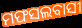
ମଫସଲବାସୀ